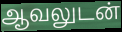
ஆவலுடன்